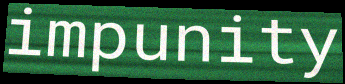
impunity